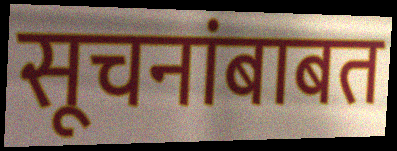
सूचनांबाबत